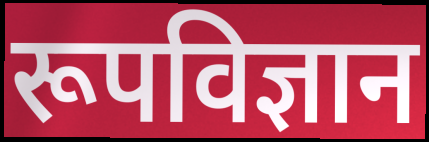
रूपविज्ञान